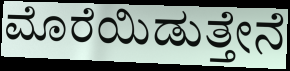
ಮೊರೆಯಿಡುತ್ತೇನೆ